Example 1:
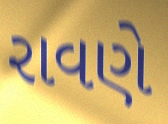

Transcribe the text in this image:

રાવણે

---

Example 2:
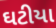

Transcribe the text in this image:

ઘટીયા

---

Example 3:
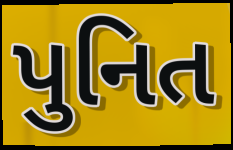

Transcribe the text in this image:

પુનિત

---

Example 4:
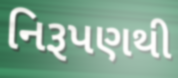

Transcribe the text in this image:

નિરૂપણથી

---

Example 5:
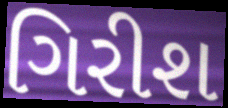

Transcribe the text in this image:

ગિરીશ